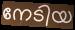
നേടിയ